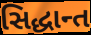
સિદ્ધાન્ત